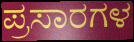
ಪ್ರಸಾರಗಳ